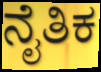
ನೈತಿಕ